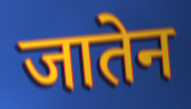
जातेन